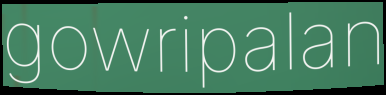
gowripalan